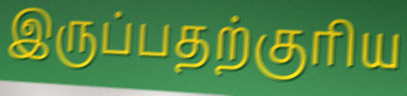
இருப்பதற்குரிய